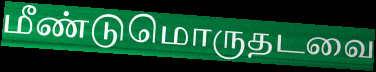
மீண்டுமொருதடவை